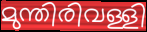
മുന്തിരിവള്ളി